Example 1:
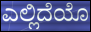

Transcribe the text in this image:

ಎಲ್ಲಿದೆಯೊ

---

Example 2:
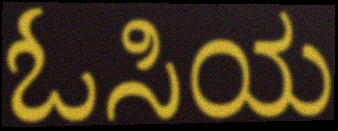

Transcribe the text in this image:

ಓಸಿಯ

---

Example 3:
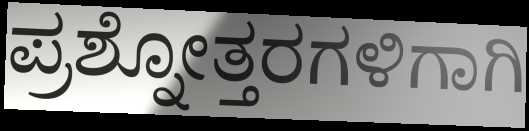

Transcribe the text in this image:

ಪ್ರಶ್ನೋತ್ತರಗಳಿಗಾಗಿ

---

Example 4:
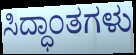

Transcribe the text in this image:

ಸಿದ್ಧಾಂತಗಳು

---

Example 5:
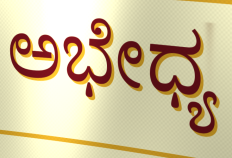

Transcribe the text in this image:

ಅಭೇಧ್ಯ